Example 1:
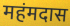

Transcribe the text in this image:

महंमदास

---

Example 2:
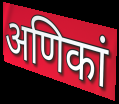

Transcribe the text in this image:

अणिकां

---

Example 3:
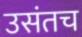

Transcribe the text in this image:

उसंतच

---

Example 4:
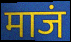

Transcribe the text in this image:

माजं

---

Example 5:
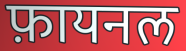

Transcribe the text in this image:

फ़ायनल